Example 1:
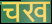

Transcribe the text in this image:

चख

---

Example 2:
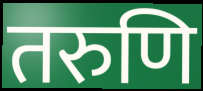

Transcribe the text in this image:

तरुणि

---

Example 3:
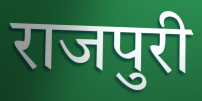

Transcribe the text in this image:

राजपुरी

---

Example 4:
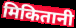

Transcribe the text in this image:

मिकितानी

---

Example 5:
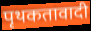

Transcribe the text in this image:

पृथकतावादी